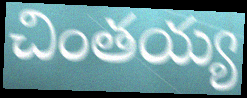
చింతయ్య